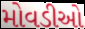
મોવડીઓ